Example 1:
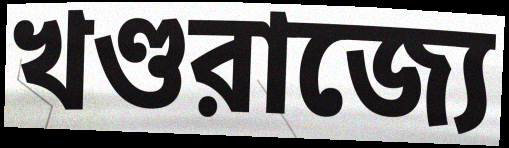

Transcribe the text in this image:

খণ্ডরাজ্যে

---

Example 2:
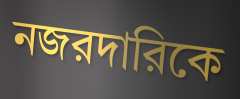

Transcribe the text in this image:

নজরদারিকে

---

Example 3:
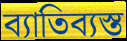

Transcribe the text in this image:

ব্যাতিব্যস্ত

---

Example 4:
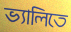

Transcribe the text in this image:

ভ্যালিতে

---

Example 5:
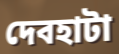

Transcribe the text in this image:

দেবহাটা